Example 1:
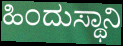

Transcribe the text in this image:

ಹಿಂದುಸ್ಥಾನಿ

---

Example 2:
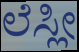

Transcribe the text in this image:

ಲೆಸ್ಲೀ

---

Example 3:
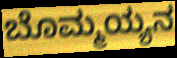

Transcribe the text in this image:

ಬೊಮ್ಮಯ್ಯನ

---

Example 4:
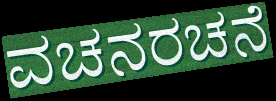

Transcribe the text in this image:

ವಚನರಚನೆ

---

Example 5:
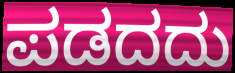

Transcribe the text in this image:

ಪಡದದು